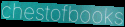
chestofbooks